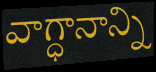
వాగ్ధానాన్ని